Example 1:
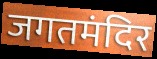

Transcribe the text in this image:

जगतमंदिर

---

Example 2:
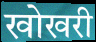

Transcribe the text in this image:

खोखरी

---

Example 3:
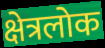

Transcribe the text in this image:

क्षेत्रलोक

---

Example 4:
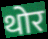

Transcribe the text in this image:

थोर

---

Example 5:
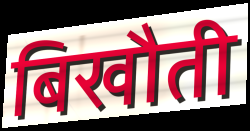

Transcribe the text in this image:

बिखौती